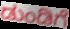
ಡುಂಡಿಗೆ